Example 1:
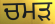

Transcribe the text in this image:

ਚਮੜ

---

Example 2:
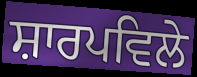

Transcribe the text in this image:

ਸ਼ਾਰਪਵਿਲੇ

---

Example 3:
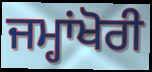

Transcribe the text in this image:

ਜਮ੍ਹਾਂਖੋਰੀ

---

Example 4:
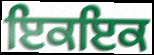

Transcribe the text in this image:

ਇਕਇਕ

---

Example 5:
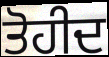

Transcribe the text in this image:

ਤੋਹੀਦ